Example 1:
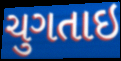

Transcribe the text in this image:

ચુગતાઇ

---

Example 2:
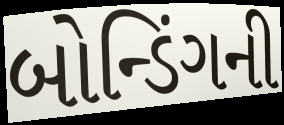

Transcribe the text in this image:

બોન્ડિંગની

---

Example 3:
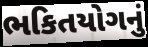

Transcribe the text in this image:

ભકિતયોગનું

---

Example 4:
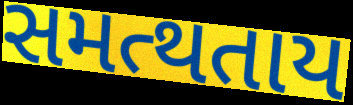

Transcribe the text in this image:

સમત્થતાય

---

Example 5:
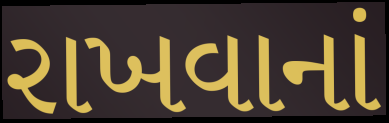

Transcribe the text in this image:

રાખવાનાં